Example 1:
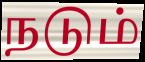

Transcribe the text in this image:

நடும்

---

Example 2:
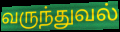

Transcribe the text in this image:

வருந்துவல்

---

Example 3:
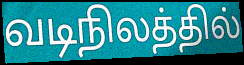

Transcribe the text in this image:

வடிநிலத்தில்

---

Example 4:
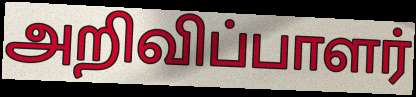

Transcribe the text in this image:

அறிவிப்பாளர்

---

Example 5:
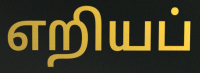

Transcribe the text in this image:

எறியப்